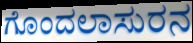
ಗೊಂದಲಾಸುರನ